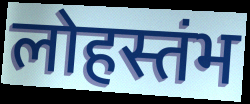
लोहस्तंभ